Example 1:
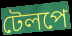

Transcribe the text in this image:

টেলপে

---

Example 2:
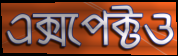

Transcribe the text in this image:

এক্সপেক্টও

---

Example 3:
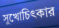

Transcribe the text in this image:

সুখোচিৎকার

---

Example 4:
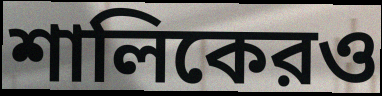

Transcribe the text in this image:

শালিকেরও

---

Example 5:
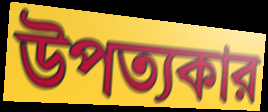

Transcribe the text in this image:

উপত্যকার